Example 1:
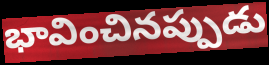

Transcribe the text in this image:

భావించినప్పుడు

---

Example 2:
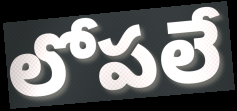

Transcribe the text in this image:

లోపలే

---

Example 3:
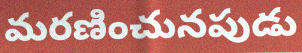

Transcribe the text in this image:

మరణించునపుడు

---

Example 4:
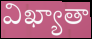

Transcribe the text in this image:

విఖ్యాతా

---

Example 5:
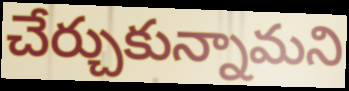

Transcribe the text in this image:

చేర్చుకున్నామని